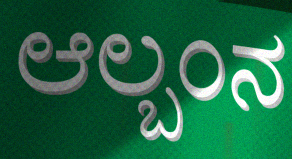
ಆಲ್ಬಂನ